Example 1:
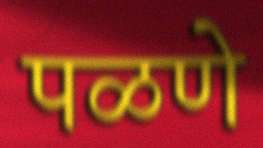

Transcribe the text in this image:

पळणे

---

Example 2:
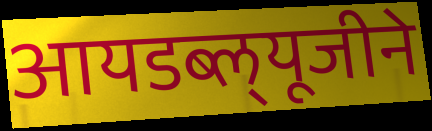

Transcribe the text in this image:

आयडब्ल्यूजीने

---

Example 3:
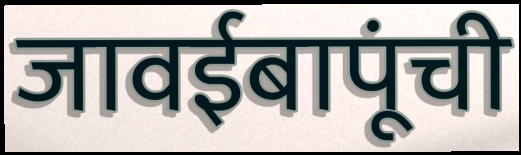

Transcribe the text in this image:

जावईबापूंची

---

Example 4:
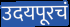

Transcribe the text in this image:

उदयपूरचं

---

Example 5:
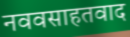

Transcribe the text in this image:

नववसाहतवाद